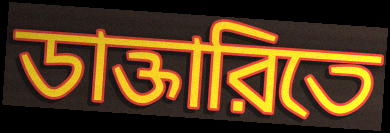
ডাক্তারিতে